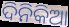
ଦିନିକିଆ